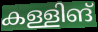
കള്ളിങ്